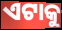
ଏଟାକୁ